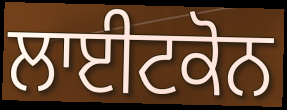
ਲਾਈਟਕੋਨ